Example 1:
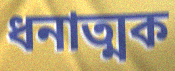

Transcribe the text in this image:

ধনাত্মক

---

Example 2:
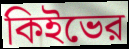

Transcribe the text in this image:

কিইভের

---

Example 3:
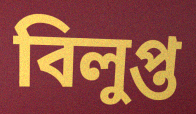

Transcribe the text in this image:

বিলুপ্ত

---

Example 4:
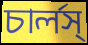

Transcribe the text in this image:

চার্লস্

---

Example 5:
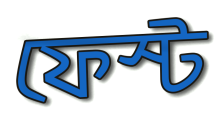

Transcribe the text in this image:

ফেস্ট